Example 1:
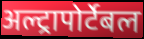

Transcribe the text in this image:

अल्ट्रापोर्टेबल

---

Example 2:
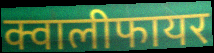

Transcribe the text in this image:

क्वालीफायर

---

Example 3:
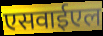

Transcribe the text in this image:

एसवाईएल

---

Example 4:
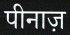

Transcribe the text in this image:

पीनाज़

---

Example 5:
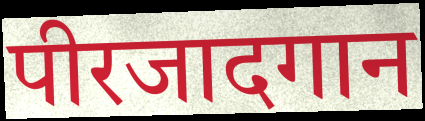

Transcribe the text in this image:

पीरजादगान